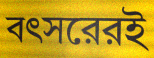
বৎসরেরই